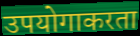
उपयोगाकरता